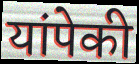
यांपेकी